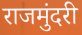
राजमुंदरी